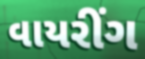
વાયરીંગ